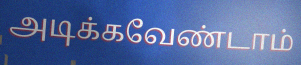
அடிக்கவேண்டாம்